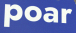
poar